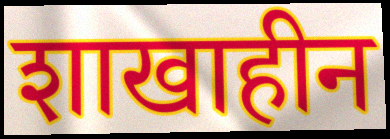
शाखाहीन